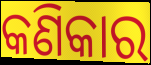
କଣିକାର